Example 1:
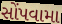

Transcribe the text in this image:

સોંપવામા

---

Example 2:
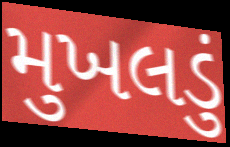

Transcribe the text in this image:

મુખલડું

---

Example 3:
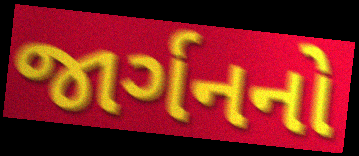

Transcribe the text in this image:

જાર્ગનનો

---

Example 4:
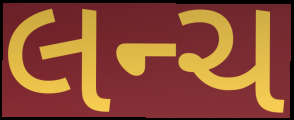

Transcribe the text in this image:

લન્ચ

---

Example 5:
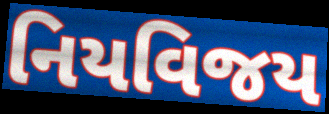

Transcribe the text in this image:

નિયવિજય